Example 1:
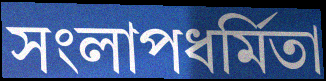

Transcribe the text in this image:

সংলাপধর্মিতা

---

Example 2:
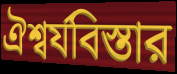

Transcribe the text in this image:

ঐশ্বর্যবিস্তার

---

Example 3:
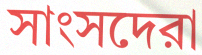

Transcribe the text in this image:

সাংসদেরা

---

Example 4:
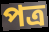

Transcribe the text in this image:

পত্র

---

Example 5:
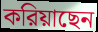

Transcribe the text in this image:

করিয়াছেন